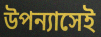
উপন্যাসেই